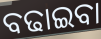
ବଢାଇବା